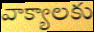
వాక్యాలకు